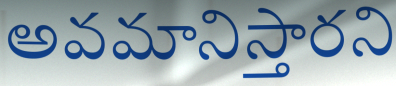
అవమానిస్తారని